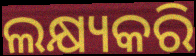
ଲକ୍ଷ୍ୟକରି